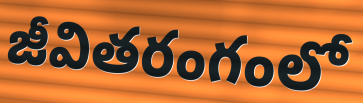
జీవితరంగంలో